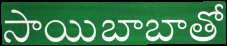
సాయిబాబాతో